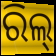
ରିଲ୍